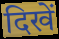
दिखें